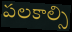
పలకాల్సి